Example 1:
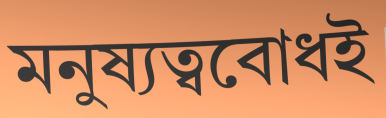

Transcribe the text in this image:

মনুষ্যত্ববোধই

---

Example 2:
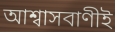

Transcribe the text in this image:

আশ্বাসবাণীই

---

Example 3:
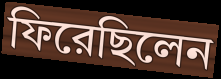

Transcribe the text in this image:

ফিরেছিলেন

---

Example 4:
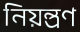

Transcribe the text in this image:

নিয়ন্ত্রণ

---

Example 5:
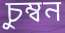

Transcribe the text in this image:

চুম্বন